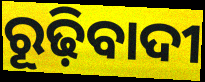
ରୂଢ଼ିବାଦୀ